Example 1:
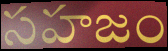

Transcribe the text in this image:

సహజం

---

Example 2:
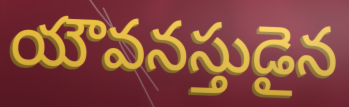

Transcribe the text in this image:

యౌవనస్తుడైన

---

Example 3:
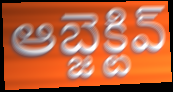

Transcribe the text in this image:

ఆబ్జెక్టివ్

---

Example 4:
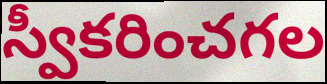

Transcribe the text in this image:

స్వీకరించగల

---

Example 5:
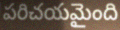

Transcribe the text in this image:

పరిచయమైంది